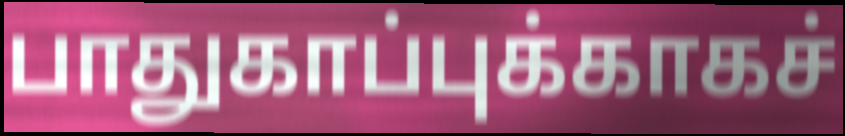
பாதுகாப்புக்காகச்